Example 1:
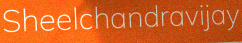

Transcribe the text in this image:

Sheelchandravijay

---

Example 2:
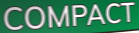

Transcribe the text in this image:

COMPACT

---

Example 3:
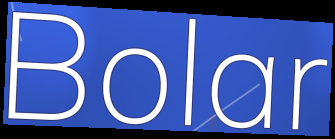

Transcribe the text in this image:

Bolar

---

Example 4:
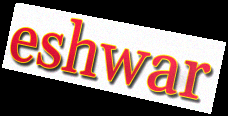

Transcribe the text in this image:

eshwar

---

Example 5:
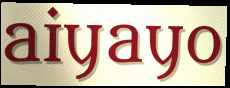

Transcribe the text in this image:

aiyayo